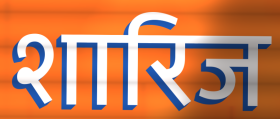
शारिज